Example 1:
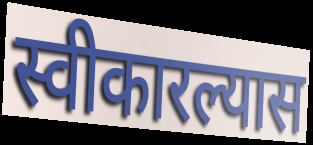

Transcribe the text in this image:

स्वीकारल्यास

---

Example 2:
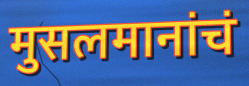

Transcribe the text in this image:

मुसलमानांचं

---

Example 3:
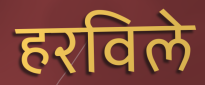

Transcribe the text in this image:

हरविले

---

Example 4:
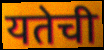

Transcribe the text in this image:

यतेची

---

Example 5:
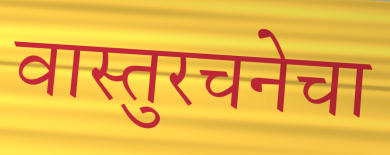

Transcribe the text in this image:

वास्तुरचनेचा